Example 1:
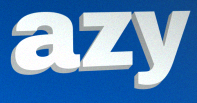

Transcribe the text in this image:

azy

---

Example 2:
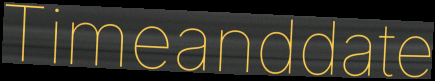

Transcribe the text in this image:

Timeanddate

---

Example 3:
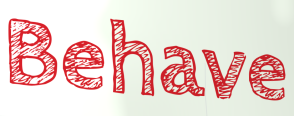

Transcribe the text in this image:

Behave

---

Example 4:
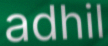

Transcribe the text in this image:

adhil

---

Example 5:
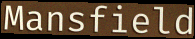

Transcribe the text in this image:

Mansfield